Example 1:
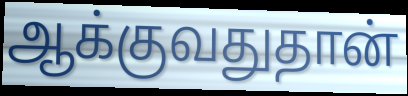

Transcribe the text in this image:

ஆக்குவதுதான்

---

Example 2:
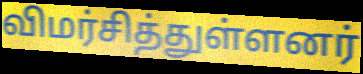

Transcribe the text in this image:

விமர்சித்துள்ளனர்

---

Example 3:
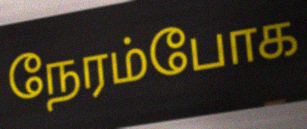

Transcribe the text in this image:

நேரம்போக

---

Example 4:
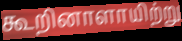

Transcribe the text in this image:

கூறினாளாயிற்று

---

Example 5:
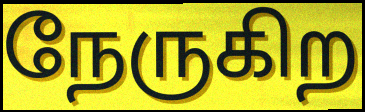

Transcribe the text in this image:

நேருகிற